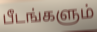
பீடங்களும்